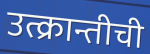
उत्क्रान्तीची